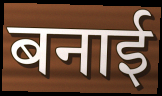
बनाई